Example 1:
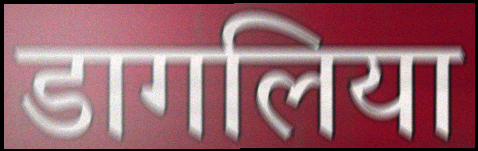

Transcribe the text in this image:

डागलिया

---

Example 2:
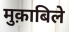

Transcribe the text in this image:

मुक़ाबिले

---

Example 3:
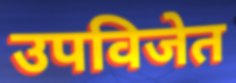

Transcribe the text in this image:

उपविजेत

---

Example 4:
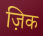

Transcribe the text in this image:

ज़िक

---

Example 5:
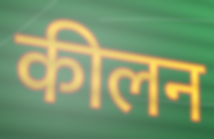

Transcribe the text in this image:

कीलन